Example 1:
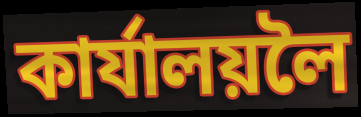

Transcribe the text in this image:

কাৰ্যালয়লৈ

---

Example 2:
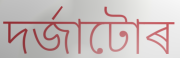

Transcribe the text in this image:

দৰ্জাটোৰ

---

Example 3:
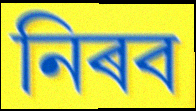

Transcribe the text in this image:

নিৰব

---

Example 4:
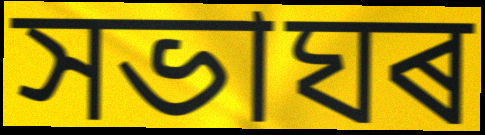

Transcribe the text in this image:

সভাঘৰ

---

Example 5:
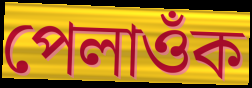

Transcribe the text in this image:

পেলাওঁক